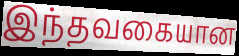
இந்தவகையான